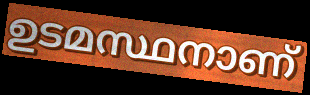
ഉടമസ്ഥനാണ്